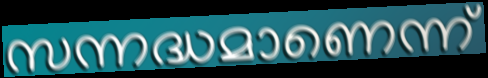
സന്നദ്ധമാണെന്ന്